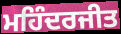
ਮਹਿੰਦਰਜੀਤ